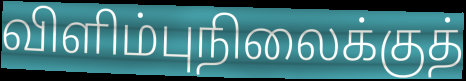
விளிம்புநிலைக்குத்